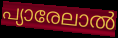
പ്യാരേലാൽ